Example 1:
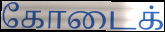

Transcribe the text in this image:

கோடைக்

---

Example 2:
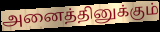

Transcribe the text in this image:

அனைத்தினுக்கும்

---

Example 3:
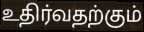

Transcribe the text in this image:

உதிர்வதற்கும்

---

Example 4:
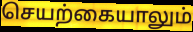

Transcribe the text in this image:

செயற்கையாலும்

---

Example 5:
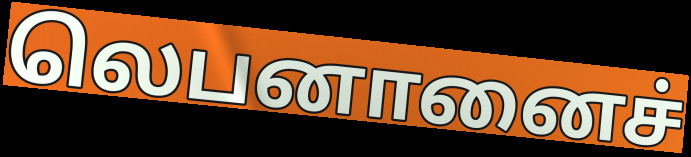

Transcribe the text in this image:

லெபனானைச்